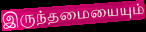
இருந்தமையையும்